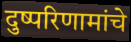
दुष्परिणामांचे